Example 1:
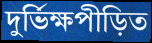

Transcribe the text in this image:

দুৰ্ভিক্ষপীড়িত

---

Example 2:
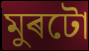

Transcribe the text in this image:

মুৰটো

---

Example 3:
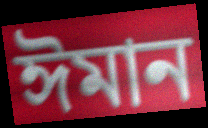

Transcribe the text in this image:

ঈমান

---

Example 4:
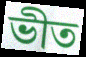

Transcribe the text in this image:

ভীত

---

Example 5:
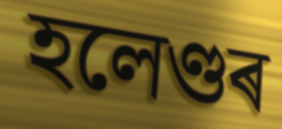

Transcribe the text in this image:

হলেণ্ডৰ